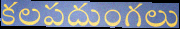
కలపదుంగలు